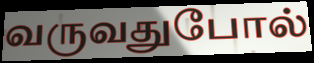
வருவதுபோல்